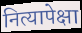
नित्यापेक्षा